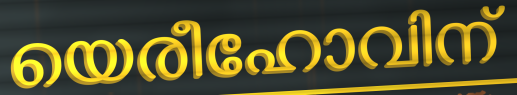
യെരീഹോവിന്